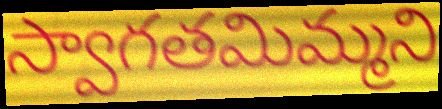
స్వాగతమిమ్మని